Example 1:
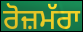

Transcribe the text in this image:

ਰੋਜ਼ਮੱਰਾ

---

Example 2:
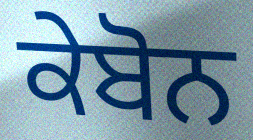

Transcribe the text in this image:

ਕੇਬੋਨ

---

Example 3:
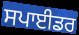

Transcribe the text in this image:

ਸਪਾਈਡਰ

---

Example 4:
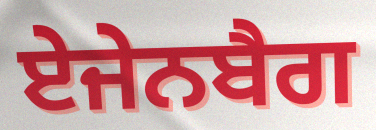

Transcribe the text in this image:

ਏਜੇਨਬੈਗ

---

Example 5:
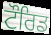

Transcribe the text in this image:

ਟੌਰਿਡ